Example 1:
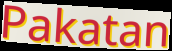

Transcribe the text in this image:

Pakatan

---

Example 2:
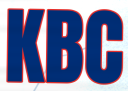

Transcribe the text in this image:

KBC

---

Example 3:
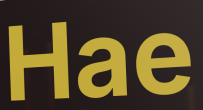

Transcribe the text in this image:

Hae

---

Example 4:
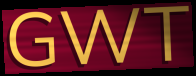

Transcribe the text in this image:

GWT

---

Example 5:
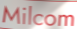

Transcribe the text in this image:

Milcom